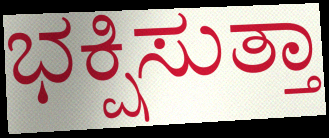
ಭಕ್ಷಿಸುತ್ತಾ